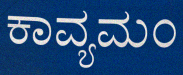
ಕಾವ್ಯಮಂ